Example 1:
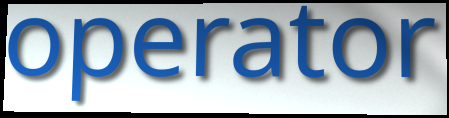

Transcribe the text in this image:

operator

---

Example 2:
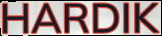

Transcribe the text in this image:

HARDIK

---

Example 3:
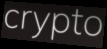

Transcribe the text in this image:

crypto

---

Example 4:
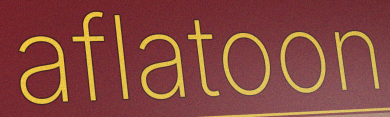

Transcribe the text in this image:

aflatoon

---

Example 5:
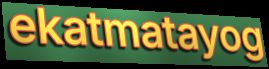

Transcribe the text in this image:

ekatmatayog